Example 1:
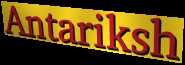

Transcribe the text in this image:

Antariksh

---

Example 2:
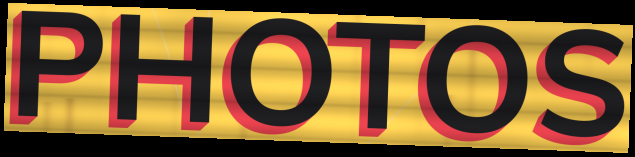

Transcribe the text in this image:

PHOTOS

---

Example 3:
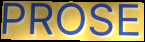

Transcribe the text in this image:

PROSE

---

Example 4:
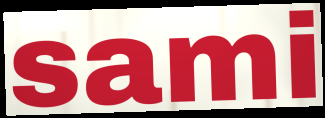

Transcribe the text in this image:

sami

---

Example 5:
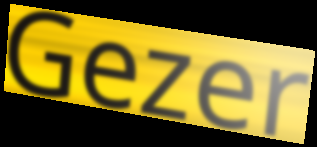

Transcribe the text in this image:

Gezer